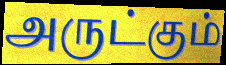
அருட்கும்